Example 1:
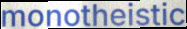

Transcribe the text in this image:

monotheistic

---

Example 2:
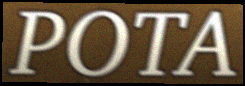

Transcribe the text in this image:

POTA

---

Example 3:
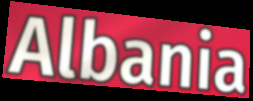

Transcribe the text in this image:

Albania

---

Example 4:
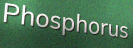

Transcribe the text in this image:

Phosphorus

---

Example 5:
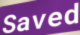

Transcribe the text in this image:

Saved